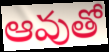
ఆవుతో